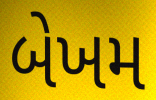
બેખમ